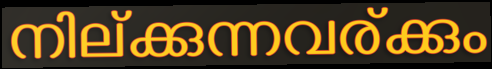
നില്ക്കുന്നവര്ക്കും